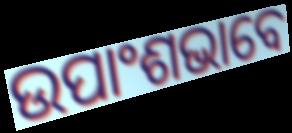
ଉପାଂଶଭାବେ